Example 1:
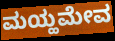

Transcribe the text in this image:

ಮಯ್ಹಮೇವ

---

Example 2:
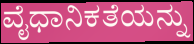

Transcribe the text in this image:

ವೈಧಾನಿಕತೆಯನ್ನು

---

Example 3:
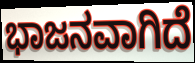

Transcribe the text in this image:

ಭಾಜನವಾಗಿದೆ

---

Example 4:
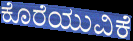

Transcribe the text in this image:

ಕೊರೆಯುವಿಕೆ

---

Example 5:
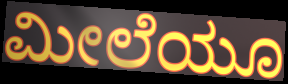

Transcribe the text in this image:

ಮೀಲೆಯೂ